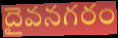
దైవనగరం